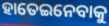
ହାତେଇନେବାକୁ